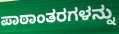
ಪಾಠಾಂತರಗಳನ್ನು